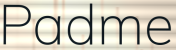
Padme